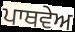
ਪਾਥਵੇਅ